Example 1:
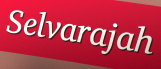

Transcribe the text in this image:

Selvarajah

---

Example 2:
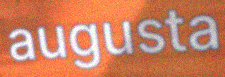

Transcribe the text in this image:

augusta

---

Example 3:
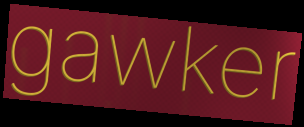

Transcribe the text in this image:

gawker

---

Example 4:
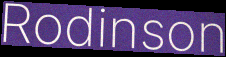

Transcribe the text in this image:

Rodinson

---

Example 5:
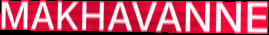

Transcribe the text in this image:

MAKHAVANNE